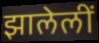
झालेलीं